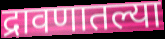
द्रावणातल्या